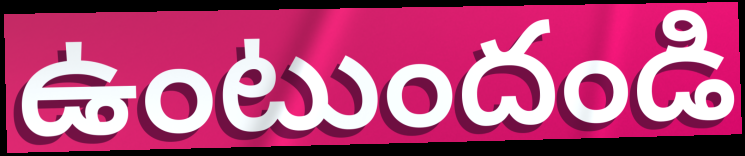
ఉంటుందండి